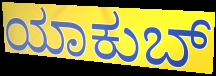
ಯಾಕುಬ್